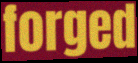
forged